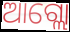
ଆଗ୍ଲୋ